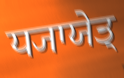
ਧ੍ਯਾਯੇਤ੍